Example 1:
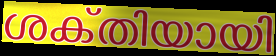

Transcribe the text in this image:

ശക്‌തിയായി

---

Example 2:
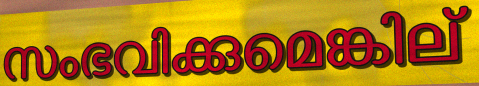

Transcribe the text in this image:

സംഭവിക്കുമെങ്കില്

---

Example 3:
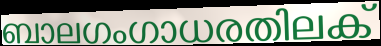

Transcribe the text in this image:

ബാലഗംഗാധരതിലക്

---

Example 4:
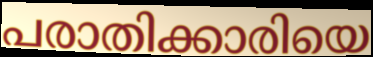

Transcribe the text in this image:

പരാതിക്കാരിയെ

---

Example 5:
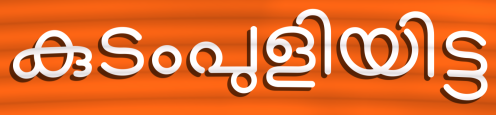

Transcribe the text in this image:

കുടംപുളിയിട്ട